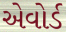
એવોર્ડ